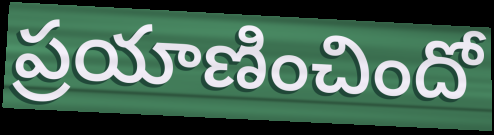
ప్రయాణించిందో